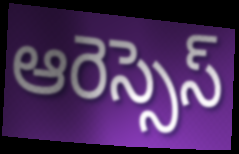
ఆరెస్సెస్